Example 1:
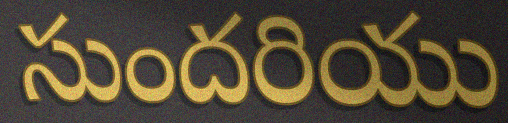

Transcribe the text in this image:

సుందరియు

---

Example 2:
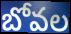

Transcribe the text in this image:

బోవల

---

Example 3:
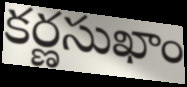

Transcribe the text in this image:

కర్ణసుఖాం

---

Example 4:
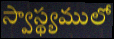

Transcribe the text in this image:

స్వాస్థ్యములో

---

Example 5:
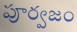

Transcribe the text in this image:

పూర్వజం